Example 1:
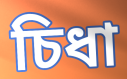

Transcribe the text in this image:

চিধা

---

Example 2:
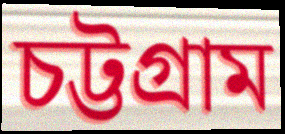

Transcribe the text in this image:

চট্টগ্ৰাম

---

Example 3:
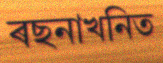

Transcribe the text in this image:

ৰছনাখনিত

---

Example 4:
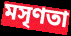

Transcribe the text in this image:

মসৃণতা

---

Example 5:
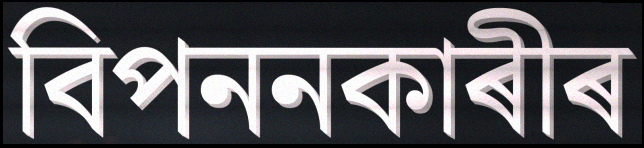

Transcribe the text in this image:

বিপননকাৰীৰ